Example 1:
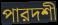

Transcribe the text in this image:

পারদশী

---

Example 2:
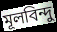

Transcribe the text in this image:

মূলবিন্দু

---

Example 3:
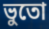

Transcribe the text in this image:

ভুতো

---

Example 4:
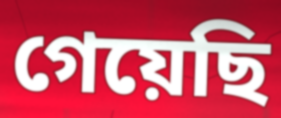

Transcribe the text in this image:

গেয়েছি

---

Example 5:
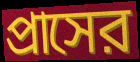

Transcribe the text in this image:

প্রাসের